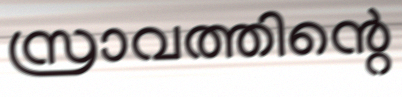
സ്രാവത്തിന്റെ